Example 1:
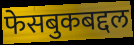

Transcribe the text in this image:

फेसबुकबद्दल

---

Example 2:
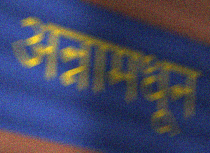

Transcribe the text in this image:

अन्नामधून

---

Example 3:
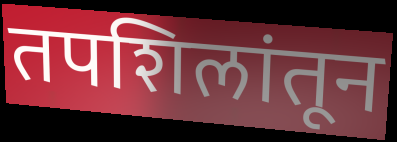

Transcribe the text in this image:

तपशिलांतून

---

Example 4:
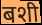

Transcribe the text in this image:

बशी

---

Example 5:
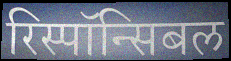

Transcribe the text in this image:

रिस्पॉन्सिबल